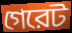
গেরেট